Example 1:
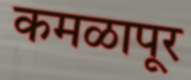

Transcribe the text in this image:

कमळापूर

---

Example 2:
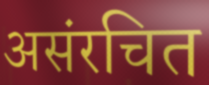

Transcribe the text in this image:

असंरचित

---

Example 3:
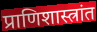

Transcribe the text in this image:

प्राणिशास्त्रांत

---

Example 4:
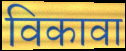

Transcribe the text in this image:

विकावा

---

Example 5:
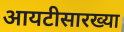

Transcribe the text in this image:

आयटीसारख्या